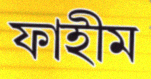
ফাহীম